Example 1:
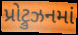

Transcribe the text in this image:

પ્રોટ્રુઝનમાં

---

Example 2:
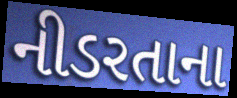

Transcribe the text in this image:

નીડરતાના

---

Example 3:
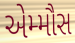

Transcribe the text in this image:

એમ્મૌસ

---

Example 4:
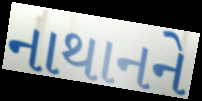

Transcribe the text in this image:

નાથાનને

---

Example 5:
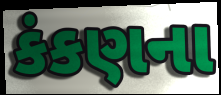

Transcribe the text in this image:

કંકણના